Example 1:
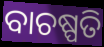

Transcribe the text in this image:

ବାଚଷ୍ପତି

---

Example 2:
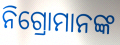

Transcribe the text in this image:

ନିଗ୍ରୋମାନଙ୍କ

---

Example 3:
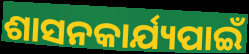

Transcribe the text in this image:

ଶାସନକାର୍ଯ୍ୟପାଇଁ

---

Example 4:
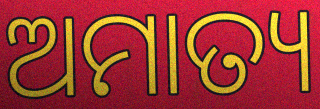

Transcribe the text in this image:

ଅମାତ୍ୟ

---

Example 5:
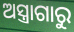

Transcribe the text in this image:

ଅସ୍ତ୍ରାଗାରୁ